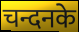
चन्दनके